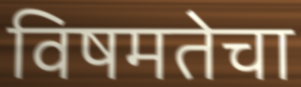
विषमतेचा